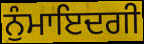
ਨੁੰਮਾਇਦਗੀ